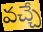
వచ్చే